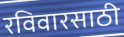
रविवारसाठी